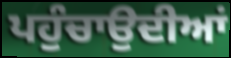
ਪਹੁੰਚਾਉਦੀਆਂ